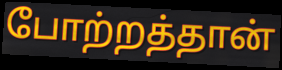
போற்றத்தான்